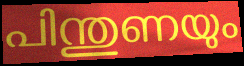
പിന്തുണയും